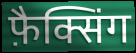
फ़ैक्सिंग